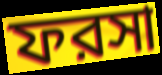
ফরসা